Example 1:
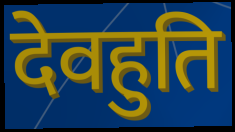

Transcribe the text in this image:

देवहुति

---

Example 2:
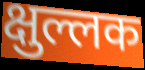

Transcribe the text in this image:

क्षुल्लक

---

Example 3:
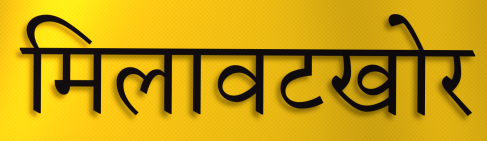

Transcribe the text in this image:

मिलावटखोर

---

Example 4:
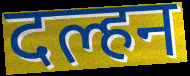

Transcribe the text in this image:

दल्हन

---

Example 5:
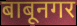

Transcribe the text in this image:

बाबूनगर